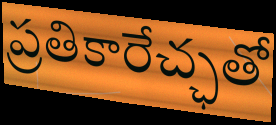
ప్రతికారేచ్ఛతో